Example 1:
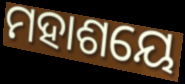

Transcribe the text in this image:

ମହାଶୟେ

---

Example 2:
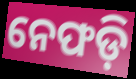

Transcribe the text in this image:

ନେଫଡ଼ି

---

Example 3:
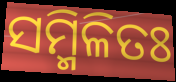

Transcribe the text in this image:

ସମ୍ମିଳିତଃ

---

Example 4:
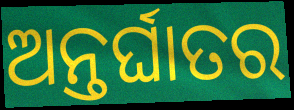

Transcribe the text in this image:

ଅନ୍ତର୍ଘାତର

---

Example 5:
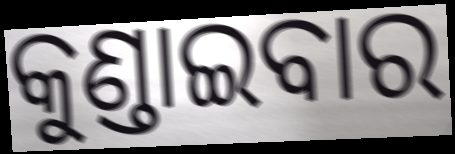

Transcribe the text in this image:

କୁଣ୍ଡାଇବାର